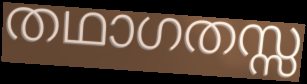
തഥാഗതസ്സ